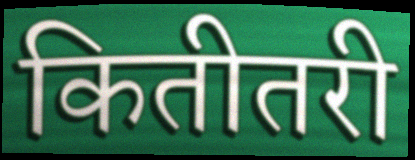
कितीतरी